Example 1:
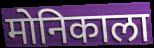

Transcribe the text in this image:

मोनिकाला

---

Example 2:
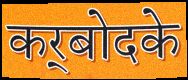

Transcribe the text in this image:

कर्बोदके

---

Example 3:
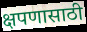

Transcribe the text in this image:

क्षपणासाठी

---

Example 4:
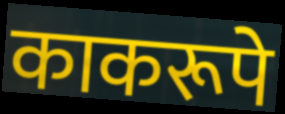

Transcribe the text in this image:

काकरूपे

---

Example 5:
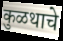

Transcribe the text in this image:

कुळथाचे